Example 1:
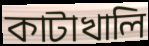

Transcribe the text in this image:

কাটাখালি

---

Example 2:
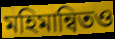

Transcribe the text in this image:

মহিমান্বিতও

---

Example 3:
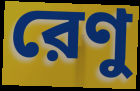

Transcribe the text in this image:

রেণু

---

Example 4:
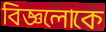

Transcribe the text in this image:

বিজ্ঞলোকে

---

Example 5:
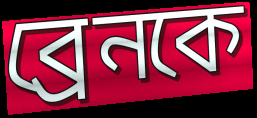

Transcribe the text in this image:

ব্রেনকে